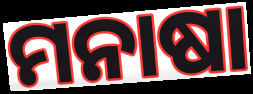
ମନାଷା